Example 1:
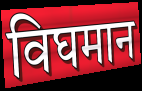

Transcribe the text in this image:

विघमान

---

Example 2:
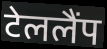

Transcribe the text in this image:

टेललैंप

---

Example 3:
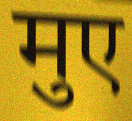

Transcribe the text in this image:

मुए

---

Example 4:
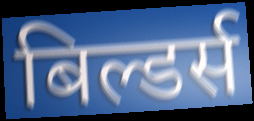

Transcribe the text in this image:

बिल्डर्स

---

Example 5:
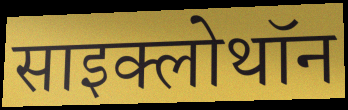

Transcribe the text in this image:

साइक्लोथॉन